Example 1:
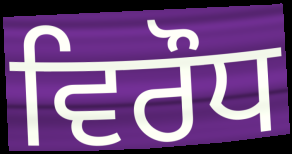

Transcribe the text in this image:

ਵਿਰੌਧ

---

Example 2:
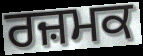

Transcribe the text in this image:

ਰਜ਼ਮਕ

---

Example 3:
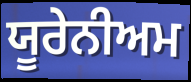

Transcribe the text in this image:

ਯੂਰੇਨੀਅਮ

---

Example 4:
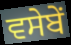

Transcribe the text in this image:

ਵਸੇਬੇਂ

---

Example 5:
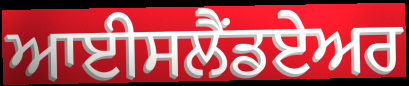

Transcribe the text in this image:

ਆਈਸਲੈਂਡਏਅਰ